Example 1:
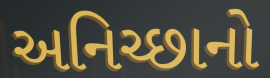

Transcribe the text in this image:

અનિચ્છાનો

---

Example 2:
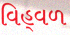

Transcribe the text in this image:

વિહ્‌વળ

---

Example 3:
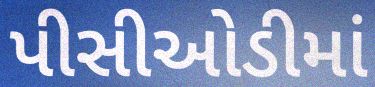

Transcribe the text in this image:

પીસીઓડીમાં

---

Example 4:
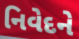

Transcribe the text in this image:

નિવેદને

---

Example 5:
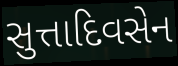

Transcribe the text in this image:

સુત્તાદિવસેન